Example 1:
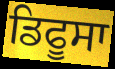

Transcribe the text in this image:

ਡਿਫੂਸਾ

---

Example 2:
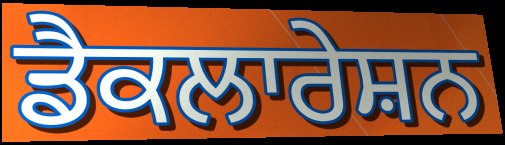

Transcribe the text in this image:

ਡੈਕਲਾਰੇਸ਼ਨ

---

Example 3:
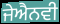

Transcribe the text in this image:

ਜੇਐਨਵੀ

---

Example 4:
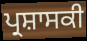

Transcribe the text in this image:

ਪ੍ਰਸ਼ਾਸਕੀ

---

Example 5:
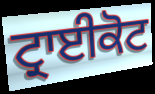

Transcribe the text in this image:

ਟ੍ਰਾਈਕੋਟ